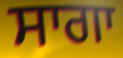
ਸਾਗਾ